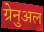
ग्रेनुअल